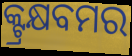
କ୍ଟ୍ରକ୍ଷବମର